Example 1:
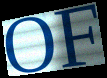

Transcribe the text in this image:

OF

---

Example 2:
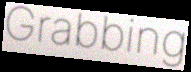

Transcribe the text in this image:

Grabbing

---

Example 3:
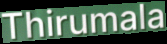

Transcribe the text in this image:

Thirumala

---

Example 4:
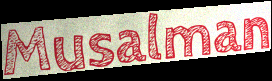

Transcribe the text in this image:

Musalman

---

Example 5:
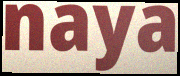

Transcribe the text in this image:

naya